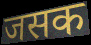
जसक